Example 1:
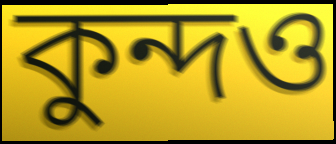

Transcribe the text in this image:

কুন্দও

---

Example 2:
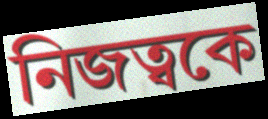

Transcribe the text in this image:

নিজত্বকে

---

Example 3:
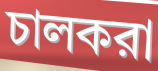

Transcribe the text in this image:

চালকরা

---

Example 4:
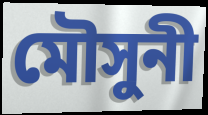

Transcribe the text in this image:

মৌসুনী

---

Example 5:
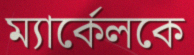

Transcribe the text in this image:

ম্যার্কেলকে